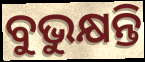
ବୁଭୁକ୍ଷନ୍ତି